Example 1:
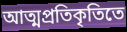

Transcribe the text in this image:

আত্মপ্রতিকৃতিতে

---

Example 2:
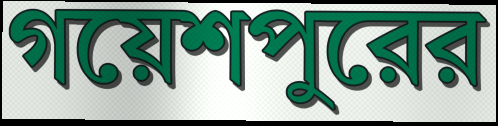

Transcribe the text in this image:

গয়েশপুরের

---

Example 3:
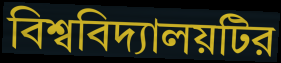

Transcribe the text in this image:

বিশ্ববিদ্যালয়টির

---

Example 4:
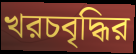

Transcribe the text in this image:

খরচবৃদ্ধির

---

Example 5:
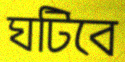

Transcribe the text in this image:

ঘটিবে